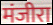
मंजीरा